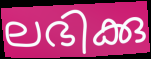
ലഭിക്കു